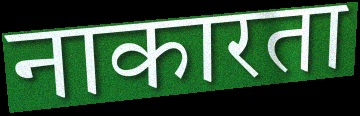
नाकारता